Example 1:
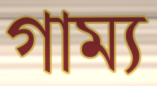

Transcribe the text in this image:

গাম্য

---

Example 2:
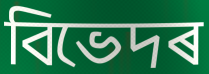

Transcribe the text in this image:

বিভেদৰ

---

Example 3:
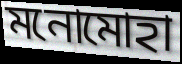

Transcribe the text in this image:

মনোমোহা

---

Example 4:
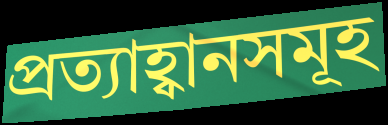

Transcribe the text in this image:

প্ৰত্যাহ্বানসমূহ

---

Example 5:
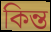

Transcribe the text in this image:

কিন্ত